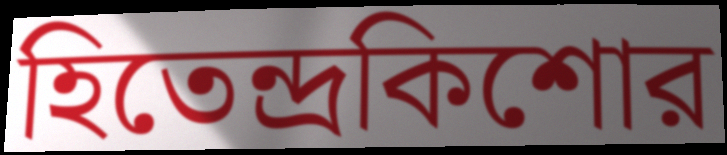
হিতেন্দ্রকিশোর